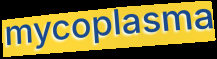
mycoplasma